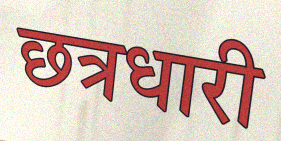
छत्रधारी